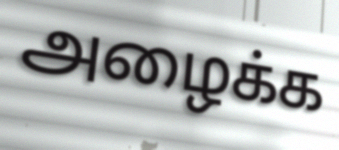
அழைக்க